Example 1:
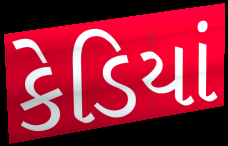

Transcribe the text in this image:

કેડિયાં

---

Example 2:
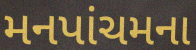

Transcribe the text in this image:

મનપાંચમના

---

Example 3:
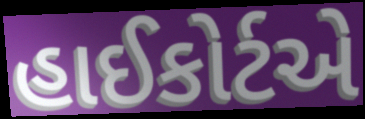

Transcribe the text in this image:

હાઈકોર્ટએ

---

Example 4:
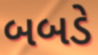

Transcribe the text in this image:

બબડે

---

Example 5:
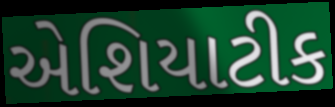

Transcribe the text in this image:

એશિયાટીક